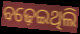
ବଢ଼େଇଥିଲି